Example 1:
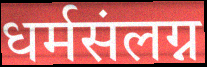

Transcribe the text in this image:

धर्मसंलग्न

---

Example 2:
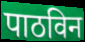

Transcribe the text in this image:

पाठविन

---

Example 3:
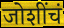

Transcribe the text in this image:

जोशींचं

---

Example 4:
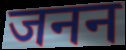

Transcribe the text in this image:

जनन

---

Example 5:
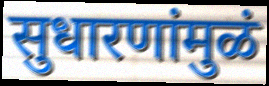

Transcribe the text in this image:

सुधारणांमुळं